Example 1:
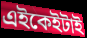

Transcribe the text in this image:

এইকেইটাই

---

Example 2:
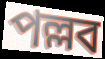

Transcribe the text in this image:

পল্লব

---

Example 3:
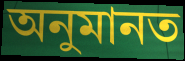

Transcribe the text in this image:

অনুমানত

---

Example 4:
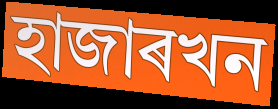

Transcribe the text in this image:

হাজাৰখন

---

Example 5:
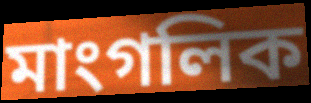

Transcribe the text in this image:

মাংগলিক